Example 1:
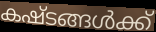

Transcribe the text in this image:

കഷ്ടങ്ങൾക്ക്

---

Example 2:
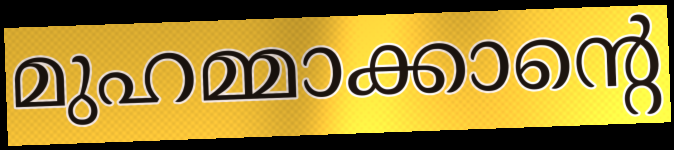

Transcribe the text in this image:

മുഹമ്മാക്കാന്റെ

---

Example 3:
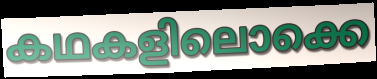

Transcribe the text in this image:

കഥകളിലൊക്കെ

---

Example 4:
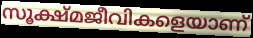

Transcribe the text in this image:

സൂക്ഷ്മജീവികളെയാണ്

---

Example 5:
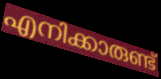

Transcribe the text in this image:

എനിക്കാരുണ്ട്